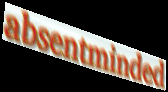
absentminded